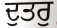
ਦੁਤਰੁ